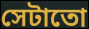
সেটাতো